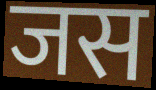
जस